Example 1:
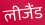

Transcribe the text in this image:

लीजैंड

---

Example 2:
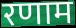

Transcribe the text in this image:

रणाम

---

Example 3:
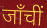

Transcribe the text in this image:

जाँचीं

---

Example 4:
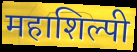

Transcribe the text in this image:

महाशिल्पी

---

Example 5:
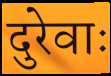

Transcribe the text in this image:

दुरेवाः